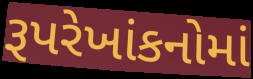
રૂપરેખાંકનોમાં